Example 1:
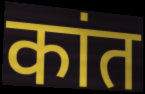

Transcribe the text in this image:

कांत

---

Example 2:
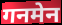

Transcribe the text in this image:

गनमेन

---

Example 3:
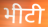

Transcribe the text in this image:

भीटी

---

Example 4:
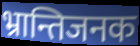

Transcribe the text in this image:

भ्रान्तिजनक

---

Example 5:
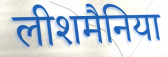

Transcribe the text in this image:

लीशमैनिया